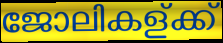
ജോലികള്ക്ക്